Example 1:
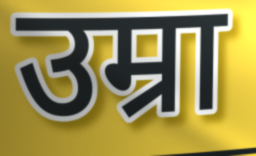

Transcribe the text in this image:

उम्रा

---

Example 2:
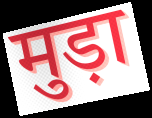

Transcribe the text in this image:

मुड़ा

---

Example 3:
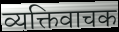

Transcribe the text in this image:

व्यक्तिवाचक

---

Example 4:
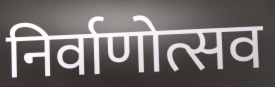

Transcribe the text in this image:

निर्वाणोत्सव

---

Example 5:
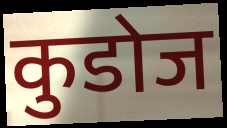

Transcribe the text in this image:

कुडोज